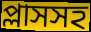
প্লাসসহ